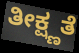
ತೀಕ್ಷ್ಣತೆ